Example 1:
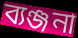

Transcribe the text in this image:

ব্যঞ্জনা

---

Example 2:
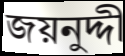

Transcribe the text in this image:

জয়নুদ্দী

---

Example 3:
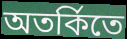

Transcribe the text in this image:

অতর্কিতে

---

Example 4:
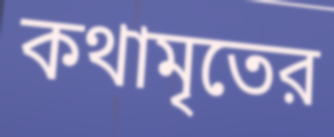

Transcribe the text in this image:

কথামৃতের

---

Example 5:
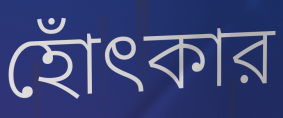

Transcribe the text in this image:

হোঁৎকার